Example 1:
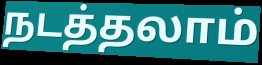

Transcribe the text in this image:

நடத்தலாம்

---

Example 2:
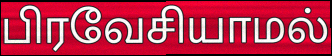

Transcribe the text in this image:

பிரவேசியாமல்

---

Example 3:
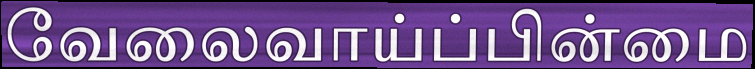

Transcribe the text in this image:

வேலைவாய்ப்பின்மை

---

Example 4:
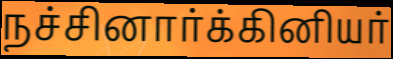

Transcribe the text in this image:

நச்சினார்க்கினியர்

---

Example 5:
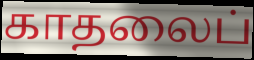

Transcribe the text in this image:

காதலைப்